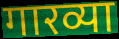
गारव्या